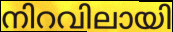
നിറവിലായി